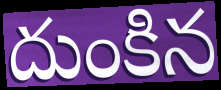
దుంకిన